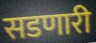
सडणारी